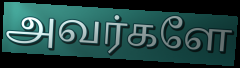
அவர்களே